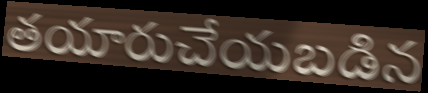
తయారుచేయబడిన